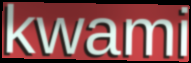
kwami